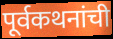
पूर्वकथनांची